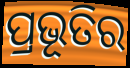
ପ୍ରଭୂତିର